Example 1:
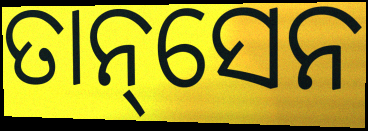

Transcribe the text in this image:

ତାନ୍‌ସେନ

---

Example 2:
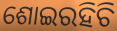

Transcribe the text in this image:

ଶୋଇରହିଚି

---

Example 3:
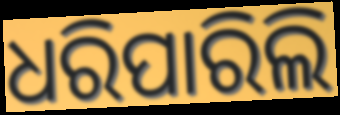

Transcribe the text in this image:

ଧରିପାରିଲି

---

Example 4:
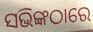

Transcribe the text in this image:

ସଭିଙ୍କଠାରେ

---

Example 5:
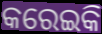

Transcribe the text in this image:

କରେଇକି